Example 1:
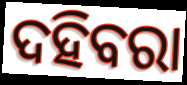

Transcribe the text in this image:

ଦହିବରା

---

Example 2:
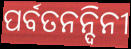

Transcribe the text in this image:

ପର୍ବତନନ୍ଦିନୀ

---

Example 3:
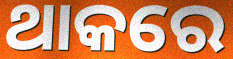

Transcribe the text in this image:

ଥାକରେ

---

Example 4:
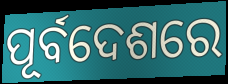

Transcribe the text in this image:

ପୂର୍ବଦେଶରେ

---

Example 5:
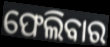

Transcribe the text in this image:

ଫେଲିବାର